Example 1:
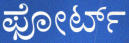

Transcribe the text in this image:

ಫೋರ್ಟ್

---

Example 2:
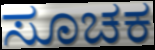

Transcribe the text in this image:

ಸೂಚಕ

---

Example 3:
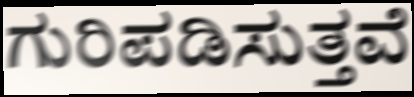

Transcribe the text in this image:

ಗುರಿಪಡಿಸುತ್ತವೆ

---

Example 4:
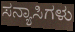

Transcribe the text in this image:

ಸನ್ಯಾಸಿಗಳು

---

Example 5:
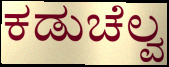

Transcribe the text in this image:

ಕಡುಚೆಲ್ವ